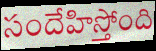
సందేహిస్తోంది